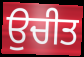
ਉਚੀਤ